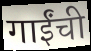
गाईंची